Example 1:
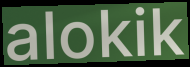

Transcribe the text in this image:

alokik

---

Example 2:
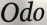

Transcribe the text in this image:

Odo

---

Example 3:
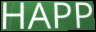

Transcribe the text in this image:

HAPP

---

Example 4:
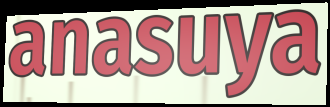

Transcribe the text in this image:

anasuya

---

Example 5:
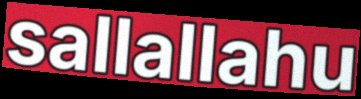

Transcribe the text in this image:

sallallahu